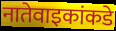
नातेवाइकांकडे